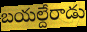
బయల్దేరాడు